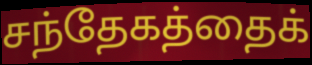
சந்தேகத்தைக்